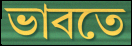
ভাবতে